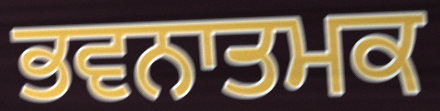
ਭਵਨਾਤਮਕ